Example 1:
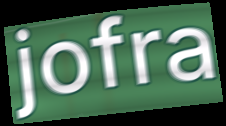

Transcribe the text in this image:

jofra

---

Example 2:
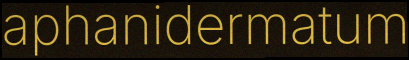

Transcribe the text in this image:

aphanidermatum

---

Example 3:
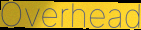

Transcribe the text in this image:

Overhead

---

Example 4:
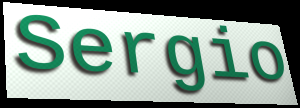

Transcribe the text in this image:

Sergio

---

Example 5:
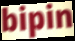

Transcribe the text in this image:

bipin